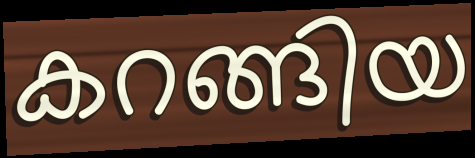
കറങ്ങിയ